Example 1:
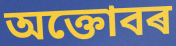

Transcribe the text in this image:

অক্তোবৰ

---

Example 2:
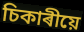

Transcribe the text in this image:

চিকাৰীয়ে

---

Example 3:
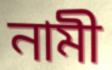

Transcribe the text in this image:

নামী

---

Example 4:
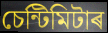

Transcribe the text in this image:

চেন্টিমিটাৰ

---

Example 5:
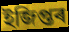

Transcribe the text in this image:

ইজিপ্তৰ